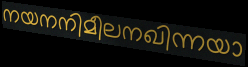
നയനനിമീലനഖിന്നയാ